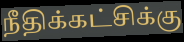
நீதிக்கட்சிக்கு